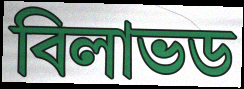
বিলাভড